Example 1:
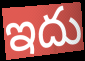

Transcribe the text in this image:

ఇదు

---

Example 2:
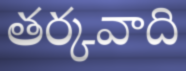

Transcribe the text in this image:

తర్కవాది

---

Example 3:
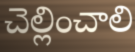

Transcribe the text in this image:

చెల్లించాలి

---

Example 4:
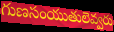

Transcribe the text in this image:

గుణసంయుతులెవ్వరు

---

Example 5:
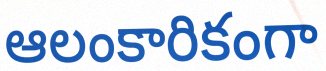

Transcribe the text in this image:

ఆలంకారికంగా